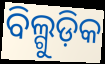
ବିଲ୍ଗୁଡ଼ିକ